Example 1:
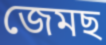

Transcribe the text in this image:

জেমছ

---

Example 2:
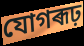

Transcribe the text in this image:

যোগৰূঢ়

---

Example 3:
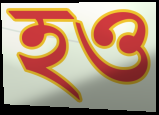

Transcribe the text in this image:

হও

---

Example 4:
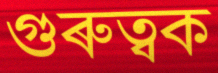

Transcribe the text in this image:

গুৰুত্বক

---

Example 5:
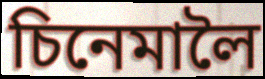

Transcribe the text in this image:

চিনেমালৈ